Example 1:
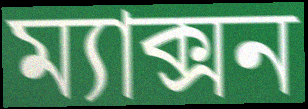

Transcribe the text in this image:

ম্যাক্সন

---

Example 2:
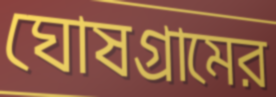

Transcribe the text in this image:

ঘোষগ্রামের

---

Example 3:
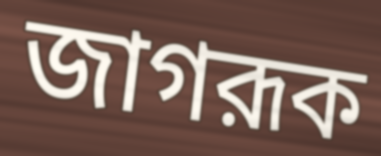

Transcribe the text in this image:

জাগরূক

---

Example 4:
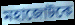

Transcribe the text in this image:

মহাজোটকে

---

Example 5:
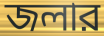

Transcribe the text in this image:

জলার